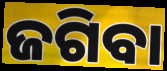
ଜଗିବା